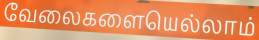
வேலைகளையெல்லாம்